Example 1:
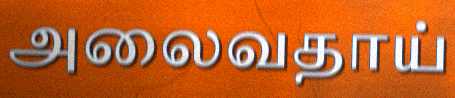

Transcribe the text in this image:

அலைவதாய்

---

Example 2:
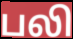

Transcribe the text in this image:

பலி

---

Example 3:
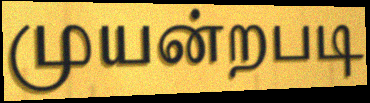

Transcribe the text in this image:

முயன்றபடி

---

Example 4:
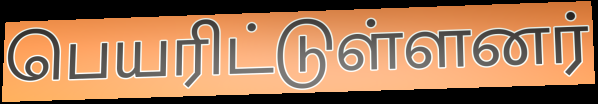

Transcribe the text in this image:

பெயரிட்டுள்ளனர்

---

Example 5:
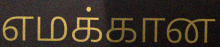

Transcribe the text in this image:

எமக்கான